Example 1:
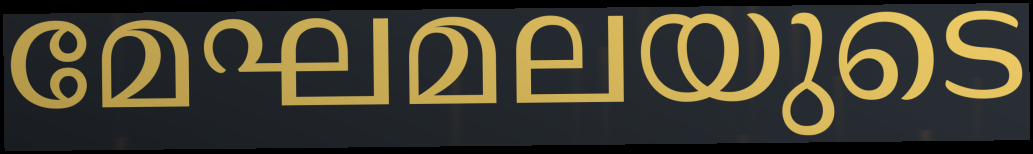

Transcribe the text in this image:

മേഘമലയുടെ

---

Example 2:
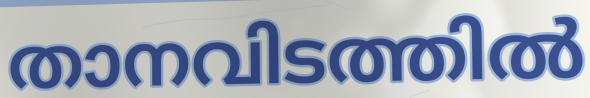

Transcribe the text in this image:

താനവിടത്തിൽ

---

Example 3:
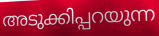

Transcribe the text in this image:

അടുക്കിപ്പറയുന്ന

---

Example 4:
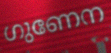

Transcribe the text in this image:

ഗുണേന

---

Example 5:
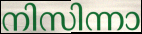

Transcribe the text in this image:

നിസിന്നാ